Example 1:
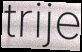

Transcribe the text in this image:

trije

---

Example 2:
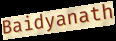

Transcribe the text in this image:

Baidyanath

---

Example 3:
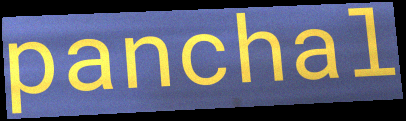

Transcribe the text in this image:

panchal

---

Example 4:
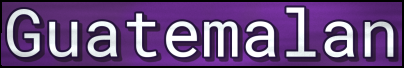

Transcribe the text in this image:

Guatemalan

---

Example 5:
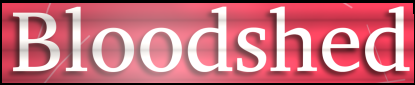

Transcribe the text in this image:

Bloodshed